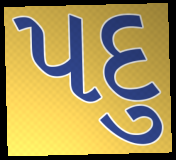
પદુ